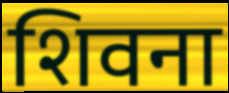
शिवना